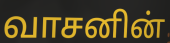
வாசனின்